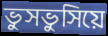
ভুসভুসিয়ে